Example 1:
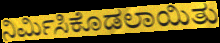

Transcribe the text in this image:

ನಿರ್ಮಿಸಿಕೊಡಲಾಯಿತು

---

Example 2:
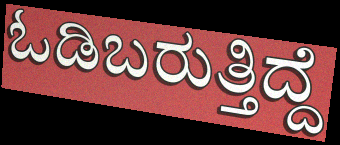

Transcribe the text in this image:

ಓಡಿಬರುತ್ತಿದ್ದೆ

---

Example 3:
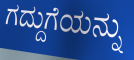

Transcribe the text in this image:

ಗದ್ದುಗೆಯನ್ನು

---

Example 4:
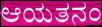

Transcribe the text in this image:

ಆಯತನಂ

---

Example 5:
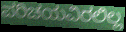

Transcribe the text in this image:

ಪರಿಚಯವಿರಲಿಲ್ಲ